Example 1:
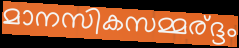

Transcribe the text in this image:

മാനസികസമ്മര്ദ്ദം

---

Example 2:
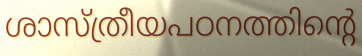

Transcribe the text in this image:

ശാസ്ത്രീയപഠനത്തിന്റെ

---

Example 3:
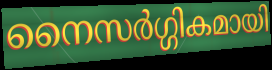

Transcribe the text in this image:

നൈസർഗ്ഗികമായി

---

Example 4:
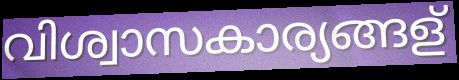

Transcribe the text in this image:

വിശ്വാസകാര്യങ്ങള്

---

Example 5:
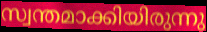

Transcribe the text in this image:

സ്വന്തമാക്കിയിരുന്നു